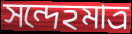
সন্দেহমাত্র